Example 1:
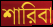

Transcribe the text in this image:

শারিবা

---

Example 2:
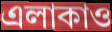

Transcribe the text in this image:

এলাকাও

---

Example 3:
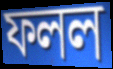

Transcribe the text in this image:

ফলল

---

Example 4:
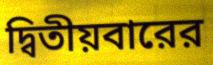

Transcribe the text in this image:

দ্বিতীয়বারের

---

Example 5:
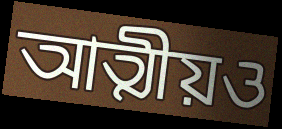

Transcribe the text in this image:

আত্মীয়ও